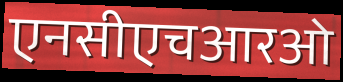
एनसीएचआरओ